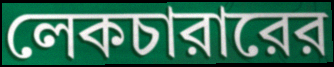
লেকচারারের